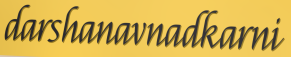
darshanavnadkarni